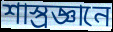
শাস্ত্রজ্ঞানে